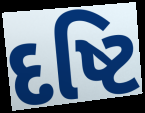
દષ્ટિ